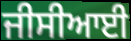
ਜੀਸੀਆਈ